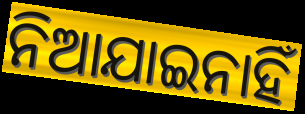
ନିଆଯାଇନାହିଁ